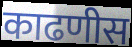
काढणीस